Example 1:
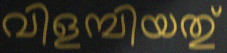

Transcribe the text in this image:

വിളമ്പിയതു്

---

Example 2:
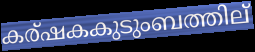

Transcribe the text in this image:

കര്ഷകകുടുംബത്തില്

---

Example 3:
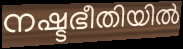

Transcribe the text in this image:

നഷ്ടഭീതിയിൽ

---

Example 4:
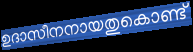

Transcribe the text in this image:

ഉദാസീനനായതുകൊണ്ട്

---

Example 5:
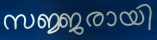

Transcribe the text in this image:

സജ്ജരായി